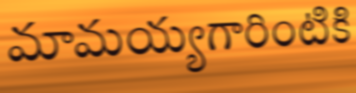
మామయ్యగారింటికి